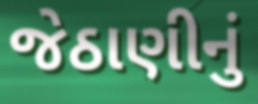
જેઠાણીનું